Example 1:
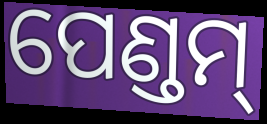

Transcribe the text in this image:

ପେଣ୍ଡମ୍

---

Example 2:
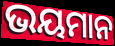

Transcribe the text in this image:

ଭୟମାନ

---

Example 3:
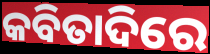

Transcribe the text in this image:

କବିତାଦିରେ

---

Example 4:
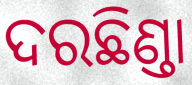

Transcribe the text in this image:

ଦରଛିଣ୍ଡା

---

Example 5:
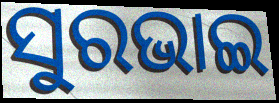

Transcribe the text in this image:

ସୁରଭାଇ